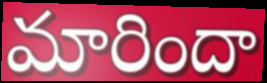
మారిందా